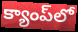
క్యాంప్‌లో